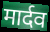
मार्दव